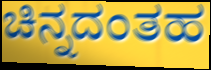
ಚಿನ್ನದಂತಹ